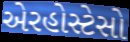
એરહોસ્ટેસો